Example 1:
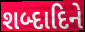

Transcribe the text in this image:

શબ્દાદિને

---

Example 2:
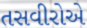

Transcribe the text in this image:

તસવીરોએ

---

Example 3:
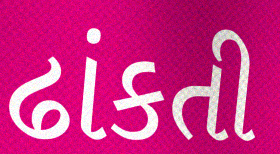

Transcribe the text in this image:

ઢાંકતી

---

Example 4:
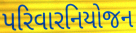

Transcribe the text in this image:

પરિવારનિયોજન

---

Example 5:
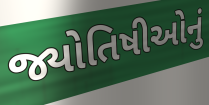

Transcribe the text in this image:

જ્યોતિષીઓનું